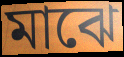
মাঝে